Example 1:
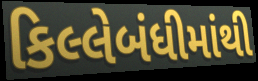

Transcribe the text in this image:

કિલ્લેબંધીમાંથી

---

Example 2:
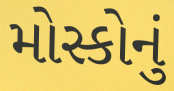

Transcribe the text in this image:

મોસ્કોનું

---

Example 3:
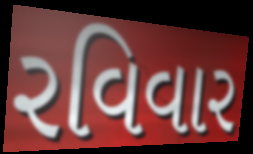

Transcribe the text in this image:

રવિવાર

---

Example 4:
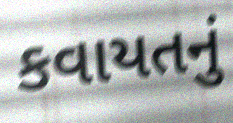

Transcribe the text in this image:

કવાયતનું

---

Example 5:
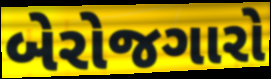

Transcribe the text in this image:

બેરોજગારો